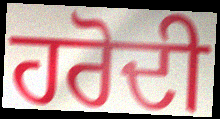
ਹਰੋਦੀ